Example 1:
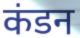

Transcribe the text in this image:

कंडन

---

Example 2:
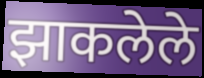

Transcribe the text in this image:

झाकलेले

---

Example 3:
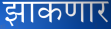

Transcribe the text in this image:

झाकणार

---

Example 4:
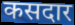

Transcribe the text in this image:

कसदार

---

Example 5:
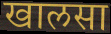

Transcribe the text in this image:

खालसा